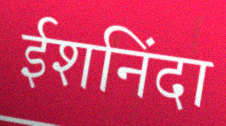
ईशनिंदा